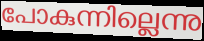
പോകുന്നില്ലെന്നു